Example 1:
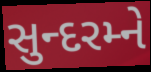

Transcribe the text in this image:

સુન્દરમ્ને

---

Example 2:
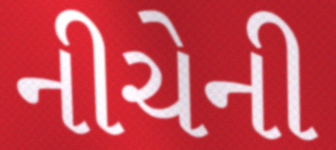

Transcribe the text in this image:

નીચેની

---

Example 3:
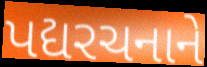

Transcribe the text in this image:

પદ્યરચનાને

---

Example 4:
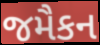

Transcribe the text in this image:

જમૈકન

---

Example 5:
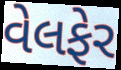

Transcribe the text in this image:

વેલફેર